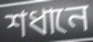
শধানে